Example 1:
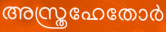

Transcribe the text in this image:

അസ്ത്രഹേതോർ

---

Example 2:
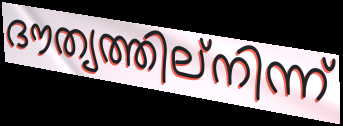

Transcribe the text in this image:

ദൗത്യത്തില്നിന്ന്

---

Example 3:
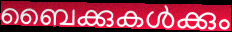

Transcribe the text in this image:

ബൈക്കുകൾക്കും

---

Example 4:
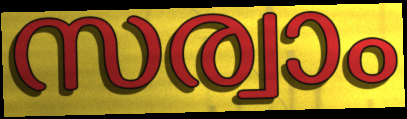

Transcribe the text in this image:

സര്വാം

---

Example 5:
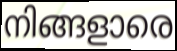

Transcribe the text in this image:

നിങ്ങളാരെ